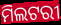
ମିଲଟରୀ